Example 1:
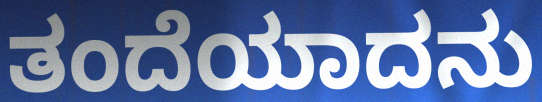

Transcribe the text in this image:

ತಂದೆಯಾದನು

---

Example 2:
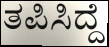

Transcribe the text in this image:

ತಪಿಸಿದ್ದೆ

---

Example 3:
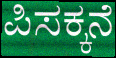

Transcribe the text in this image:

ಪಿಸಕ್ಕನೆ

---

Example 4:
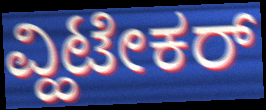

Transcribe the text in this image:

ವ್ಹಿಟೇಕರ್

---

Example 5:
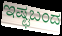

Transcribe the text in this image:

ಇಷ್ಟಬಂದ